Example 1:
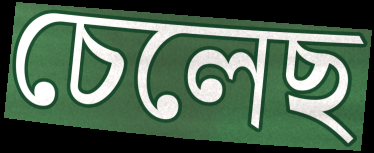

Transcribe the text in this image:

চেলেছ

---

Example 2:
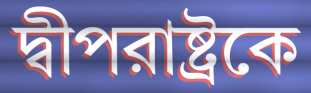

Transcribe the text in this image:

দ্বীপরাষ্ট্রকে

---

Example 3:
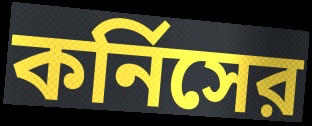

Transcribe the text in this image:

কর্নিসের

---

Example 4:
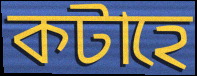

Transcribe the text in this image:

কটাহে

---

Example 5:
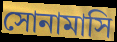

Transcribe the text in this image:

সোনামাসি